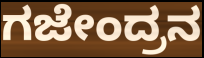
ಗಜೇಂದ್ರನ